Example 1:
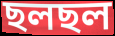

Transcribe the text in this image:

ছলছল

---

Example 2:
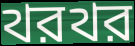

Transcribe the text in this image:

থরথর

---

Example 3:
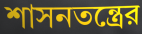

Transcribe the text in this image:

শাসনতন্ত্রের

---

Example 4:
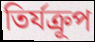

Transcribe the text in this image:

তির্যক্রূপ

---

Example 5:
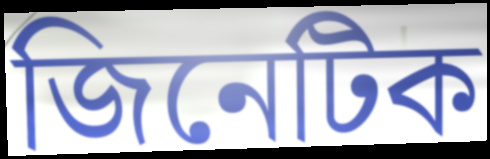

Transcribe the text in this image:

জিনেটিক